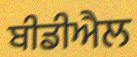
ਬੀਡੀਐਲ